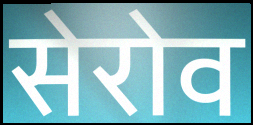
सेरोव